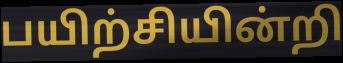
பயிற்சியின்றி